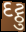
દટ્ઠુ